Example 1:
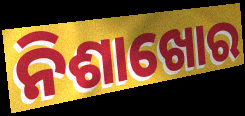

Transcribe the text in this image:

ନିଶାଖୋର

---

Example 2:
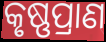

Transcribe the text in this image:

କୃଷ୍ଣପ୍ରାଣ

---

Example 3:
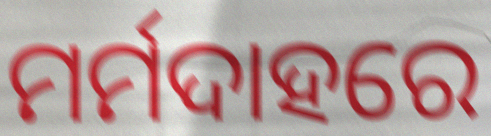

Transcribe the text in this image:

ମର୍ମଦାହରେ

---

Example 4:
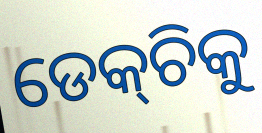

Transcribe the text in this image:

ଡେକ୍‌ଚିକୁ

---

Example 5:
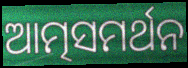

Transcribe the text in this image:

ଆତ୍ମସମର୍ଥନ